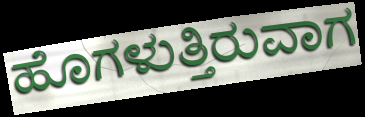
ಹೊಗಳುತ್ತಿರುವಾಗ